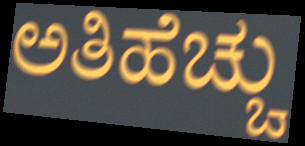
ಅತಿಹೆಚ್ಚು